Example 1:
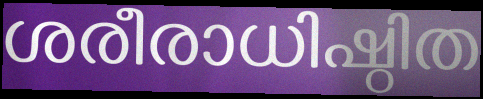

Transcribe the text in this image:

ശരീരാധിഷ്ഠിത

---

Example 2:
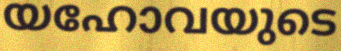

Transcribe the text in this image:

യഹോവയുടെ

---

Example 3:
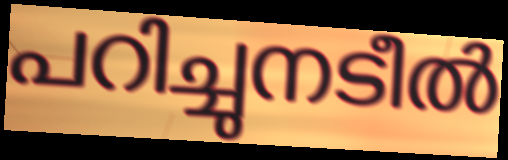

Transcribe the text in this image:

പറിച്ചുനടീൽ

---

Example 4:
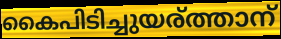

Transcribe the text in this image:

കൈപിടിച്ചുയര്ത്താന്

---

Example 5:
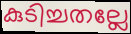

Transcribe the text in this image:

കുടിച്ചതല്ലേ